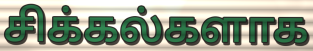
சிக்கல்களாக